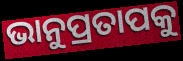
ଭାନୁପ୍ରତାପକୁ